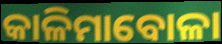
କାଳିମାବୋଳା